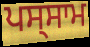
ਪਸ੍ਸਾਮ